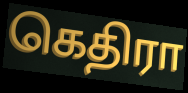
கெதிரா